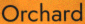
Orchard